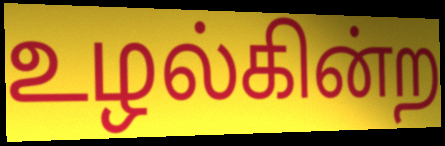
உழல்கின்ற